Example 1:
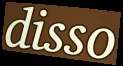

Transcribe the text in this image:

disso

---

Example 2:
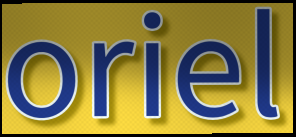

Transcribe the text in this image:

oriel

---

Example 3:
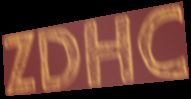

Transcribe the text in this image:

ZDHC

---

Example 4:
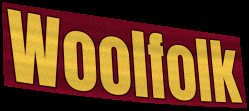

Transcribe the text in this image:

Woolfolk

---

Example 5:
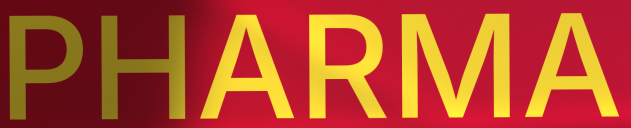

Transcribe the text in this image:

PHARMA